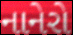
નાનેરો